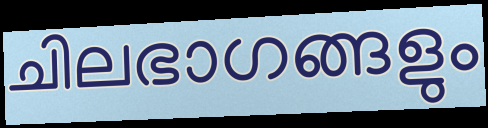
ചിലഭാഗങ്ങളും